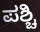
ಪಶ್ಚಿ